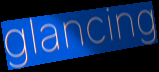
glancing